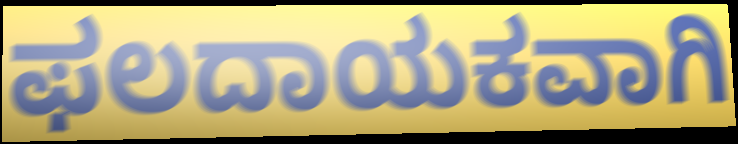
ಫಲದಾಯಕವಾಗಿ